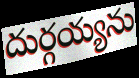
దుర్గయ్యను